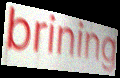
brining